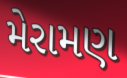
મેરામણ